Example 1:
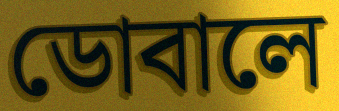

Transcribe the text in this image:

ডোবালে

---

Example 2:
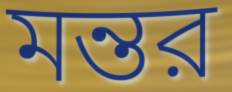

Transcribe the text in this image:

মন্তর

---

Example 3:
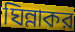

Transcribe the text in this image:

ঘিন্নাকর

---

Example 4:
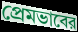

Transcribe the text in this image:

প্রেমভাবের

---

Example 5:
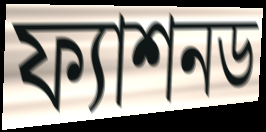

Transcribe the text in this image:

ফ্যাশনড